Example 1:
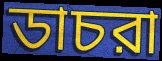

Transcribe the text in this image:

ডাচরা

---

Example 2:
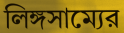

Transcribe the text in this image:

লিঙ্গসাম্যের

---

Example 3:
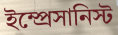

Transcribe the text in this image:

ইম্প্রেসানিস্ট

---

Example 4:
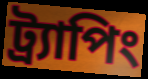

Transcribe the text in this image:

ট্র্যাপিং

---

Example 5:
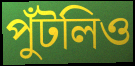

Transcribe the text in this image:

পুঁটলিও